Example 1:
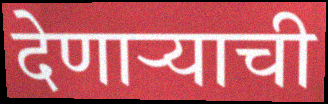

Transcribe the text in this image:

देणाऱ्याची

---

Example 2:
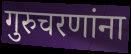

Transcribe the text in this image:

गुरुचरणांना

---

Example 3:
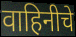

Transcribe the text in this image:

वाहिनीचे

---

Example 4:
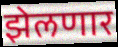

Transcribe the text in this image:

झेलणार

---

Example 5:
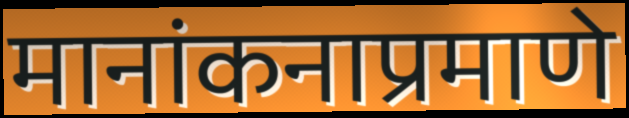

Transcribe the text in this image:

मानांकनाप्रमाणे